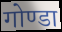
गोण्डा